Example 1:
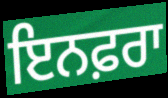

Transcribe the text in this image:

ਇਨਫ਼ਰਾ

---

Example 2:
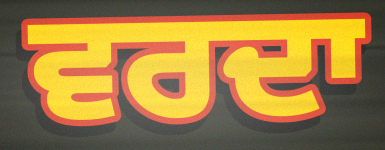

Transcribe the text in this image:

ਵਰਦਾ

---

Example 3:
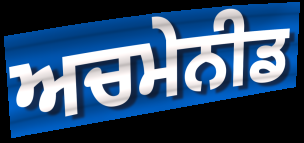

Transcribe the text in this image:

ਅਚਮੇਨੀਡ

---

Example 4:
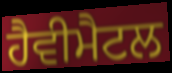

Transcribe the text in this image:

ਹੈਵੀਮੈਟਲ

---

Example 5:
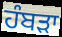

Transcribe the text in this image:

ਹੰਬੜਾ